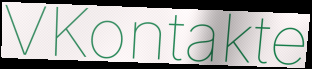
VKontakte